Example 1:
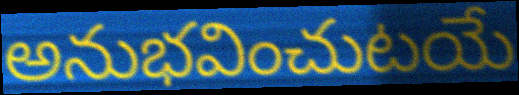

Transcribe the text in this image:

అనుభవించుటయే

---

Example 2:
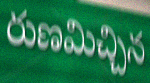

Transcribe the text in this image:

రుణమిచ్చిన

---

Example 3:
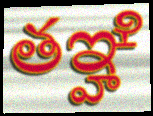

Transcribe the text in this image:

తఞ్హి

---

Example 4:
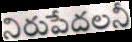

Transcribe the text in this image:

నిరుపేదలనీ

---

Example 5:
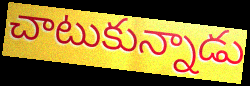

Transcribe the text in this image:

చాటుకున్నాడు